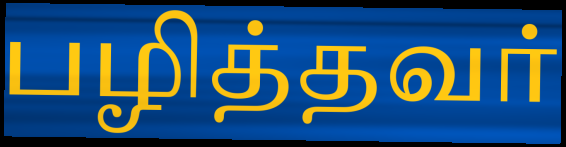
பழித்தவர்